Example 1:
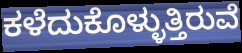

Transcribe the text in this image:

ಕಳೆದುಕೊಳ್ಳುತ್ತಿರುವೆ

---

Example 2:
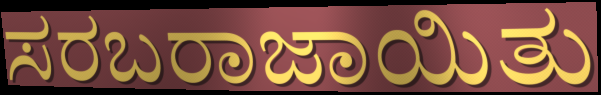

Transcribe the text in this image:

ಸರಬರಾಜಾಯಿತು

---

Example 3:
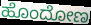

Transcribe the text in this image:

ಹೊಂದೋಣ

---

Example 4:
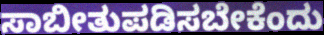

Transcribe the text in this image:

ಸಾಬೀತುಪಡಿಸಬೇಕೆಂದು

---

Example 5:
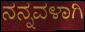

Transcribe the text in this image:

ನನ್ನವಳಾಗಿ